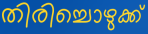
തിരിച്ചൊഴുക്ക്